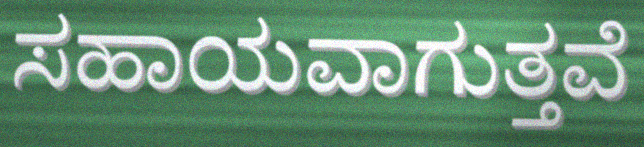
ಸಹಾಯವಾಗುತ್ತವೆ